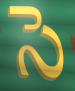
సె